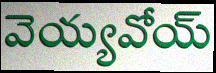
వెయ్యవోయ్